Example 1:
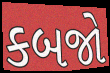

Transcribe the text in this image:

કબજો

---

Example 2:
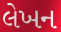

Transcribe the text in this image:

લેખન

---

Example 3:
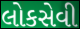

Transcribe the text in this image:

લોકસેવી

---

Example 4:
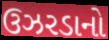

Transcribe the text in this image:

ઉઝરડાનો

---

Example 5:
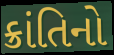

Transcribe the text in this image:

ક્રાંતિનો